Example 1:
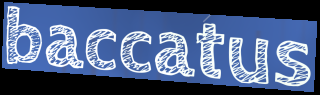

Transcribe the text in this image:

baccatus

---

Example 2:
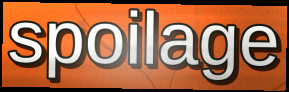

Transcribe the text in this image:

spoilage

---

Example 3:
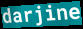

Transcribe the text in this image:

darjine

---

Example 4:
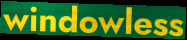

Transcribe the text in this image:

windowless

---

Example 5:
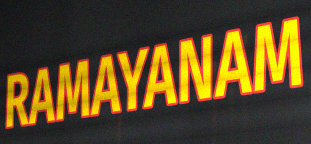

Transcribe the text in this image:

RAMAYANAM